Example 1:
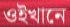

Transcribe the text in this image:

ওইখানে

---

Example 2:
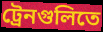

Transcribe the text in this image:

ট্রেনগুলিতে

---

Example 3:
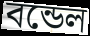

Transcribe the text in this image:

বন্ডেল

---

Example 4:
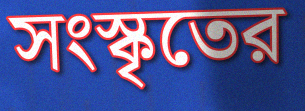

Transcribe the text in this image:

সংস্কৃতের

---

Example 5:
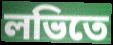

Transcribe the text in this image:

লভিতে